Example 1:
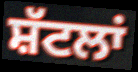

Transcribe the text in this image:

ਸ਼ੱਟਲਾਂ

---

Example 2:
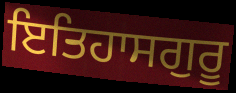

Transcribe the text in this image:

ਇਤਿਹਾਸਗੁਰੂ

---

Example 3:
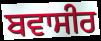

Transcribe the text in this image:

ਬਵਾਸੀਰ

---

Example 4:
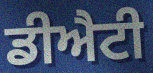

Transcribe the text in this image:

ਡੀਐਟੀ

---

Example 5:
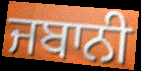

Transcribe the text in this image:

ਜਬਾਨੀ